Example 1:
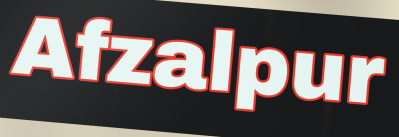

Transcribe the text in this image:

Afzalpur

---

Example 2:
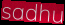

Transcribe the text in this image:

sadhu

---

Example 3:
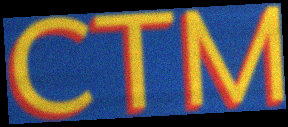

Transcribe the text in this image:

CTM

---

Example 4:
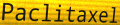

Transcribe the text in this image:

Paclitaxel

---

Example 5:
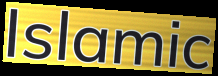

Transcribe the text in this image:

Islamic